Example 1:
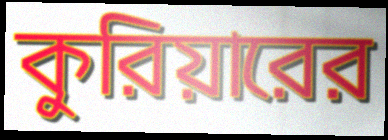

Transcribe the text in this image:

কুরিয়ারের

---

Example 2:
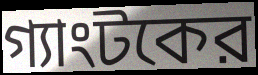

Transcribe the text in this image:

গ্যাংটকের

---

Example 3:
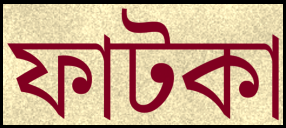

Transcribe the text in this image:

ফাটকা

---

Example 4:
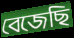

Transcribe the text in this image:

বেজেছি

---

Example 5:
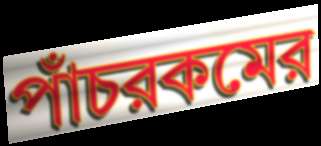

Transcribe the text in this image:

পাঁচরকমের